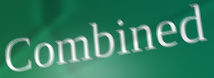
Combined